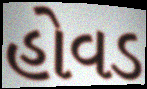
હોવડ